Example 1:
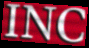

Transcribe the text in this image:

INC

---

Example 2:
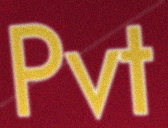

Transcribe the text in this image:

Pvt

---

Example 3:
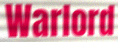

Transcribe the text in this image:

Warlord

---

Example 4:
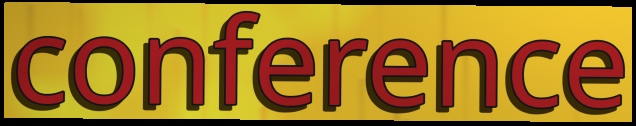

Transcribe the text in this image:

conference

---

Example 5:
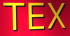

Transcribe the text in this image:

TEX